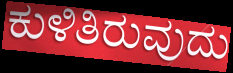
ಕುಳಿತಿರುವುದು